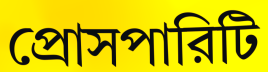
প্রোসপারিটি